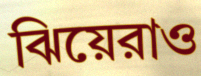
ঝিয়েরাও